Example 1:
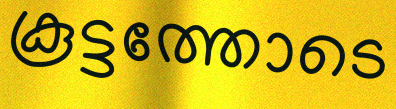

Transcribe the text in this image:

കൂട്ടത്തോടെ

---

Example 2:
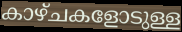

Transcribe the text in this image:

കാഴ്ചകളോടുള്ള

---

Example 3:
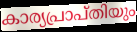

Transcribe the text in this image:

കാര്യപ്രാപ്തിയും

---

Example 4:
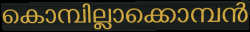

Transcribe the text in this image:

കൊമ്പില്ലാക്കൊമ്പൻ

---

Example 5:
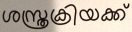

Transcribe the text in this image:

ശസ്ത്രക്രിയക്ക്